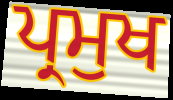
ਪ੍ਰਮੁਖ